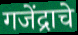
गजेंद्राचे